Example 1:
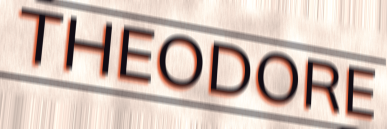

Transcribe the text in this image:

THEODORE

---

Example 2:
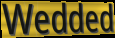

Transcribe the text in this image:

Wedded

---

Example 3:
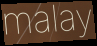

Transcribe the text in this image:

malay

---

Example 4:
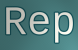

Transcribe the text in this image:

Rep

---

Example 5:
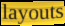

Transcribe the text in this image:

layouts